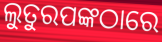
ଲୁତୁରପଙ୍କଠାରେ